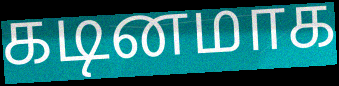
கடினமாக